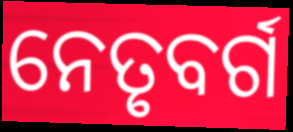
ନେତୃବର୍ଗ